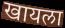
खायला